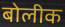
बोलीक